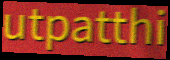
utpatthi